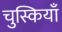
चुस्कियाँ